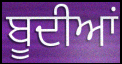
ਬੂਦੀਆਂ